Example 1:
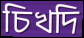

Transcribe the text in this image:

চিখদি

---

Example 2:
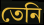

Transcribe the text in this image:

তেনি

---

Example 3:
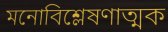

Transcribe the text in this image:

মনোবিশ্লেষণাত্মক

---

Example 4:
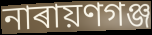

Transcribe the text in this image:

নাৰায়ণগঞ্জ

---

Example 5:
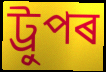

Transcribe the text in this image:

ট্ৰুপৰ